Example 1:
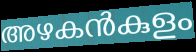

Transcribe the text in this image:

അഴകൻകുളം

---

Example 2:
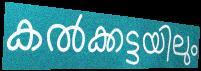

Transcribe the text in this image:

കൽക്കട്ടയിലും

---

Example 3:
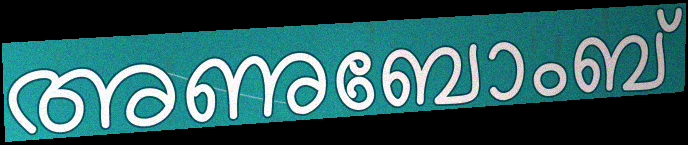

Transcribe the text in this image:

അണുബോംബ്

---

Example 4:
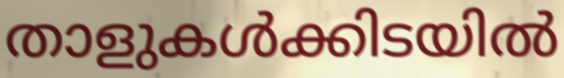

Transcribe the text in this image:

താളുകൾക്കിടയിൽ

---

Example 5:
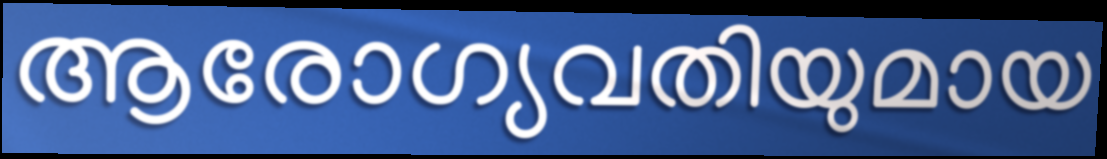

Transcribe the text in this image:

ആരോഗ്യവതിയുമായ